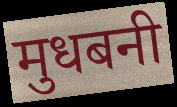
मुधबनी